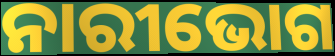
ନାରୀଭୋଗ